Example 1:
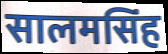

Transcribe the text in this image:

सालमसिंह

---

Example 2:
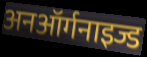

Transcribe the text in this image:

अनऑर्गनाइज्ड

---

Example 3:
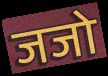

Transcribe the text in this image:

जजो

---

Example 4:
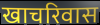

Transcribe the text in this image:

खाचरिवास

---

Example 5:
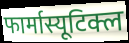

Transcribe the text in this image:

फार्मास्यूटिक्ल